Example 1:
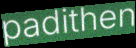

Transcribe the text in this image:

padithen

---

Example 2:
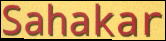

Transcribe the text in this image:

Sahakar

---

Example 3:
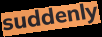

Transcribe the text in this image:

suddenly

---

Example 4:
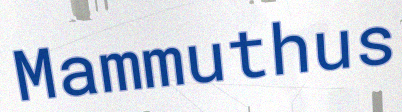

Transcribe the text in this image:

Mammuthus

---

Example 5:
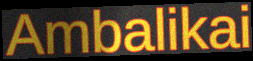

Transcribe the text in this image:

Ambalikai